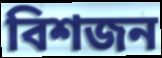
বিশজন